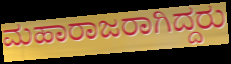
ಮಹಾರಾಜರಾಗಿದ್ದರು